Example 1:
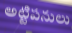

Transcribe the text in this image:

అట్టిపనులు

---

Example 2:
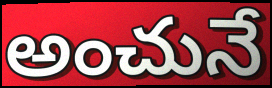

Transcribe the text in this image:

అంచునే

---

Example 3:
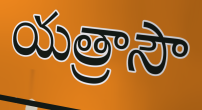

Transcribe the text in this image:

యత్రాసౌ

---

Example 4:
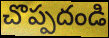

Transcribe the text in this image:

చొప్పదండి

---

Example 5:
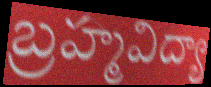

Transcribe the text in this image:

బ్రహ్మవిద్యా